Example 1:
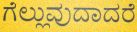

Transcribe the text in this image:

ಗೆಲ್ಲುವುದಾದರೆ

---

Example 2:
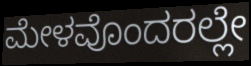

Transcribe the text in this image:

ಮೇಳವೊಂದರಲ್ಲೇ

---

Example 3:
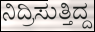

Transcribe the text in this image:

ನಿದ್ರಿಸುತ್ತಿದ್ದ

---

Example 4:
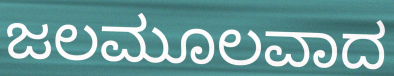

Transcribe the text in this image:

ಜಲಮೂಲವಾದ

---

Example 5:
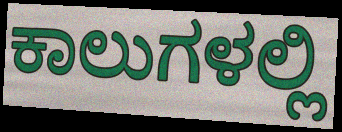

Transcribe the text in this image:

ಕಾಲುಗಳಲ್ಲಿ